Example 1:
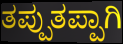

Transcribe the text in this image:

ತಪ್ಪುತಪ್ಪಾಗಿ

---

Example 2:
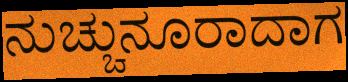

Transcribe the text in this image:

ನುಚ್ಚುನೂರಾದಾಗ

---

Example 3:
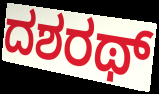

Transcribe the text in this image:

ದಶರಥ್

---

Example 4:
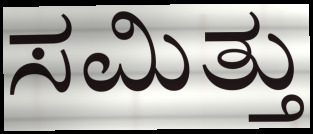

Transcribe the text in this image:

ಸಮಿತ್ತು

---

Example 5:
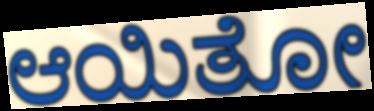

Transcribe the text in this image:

ಆಯಿತೋ